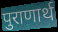
पुराणार्थ